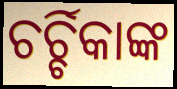
ଚର୍ଚ୍ଚିକାଙ୍କ